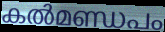
കൽമണ്ഡപം